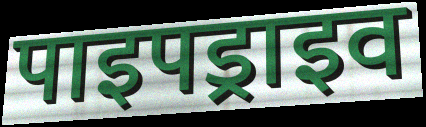
पाइपड्राइव